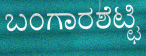
ಬಂಗಾರಶೆಟ್ಟಿ